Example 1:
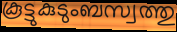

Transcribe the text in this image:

കൂട്ടുകുടുംബസ്വത്തു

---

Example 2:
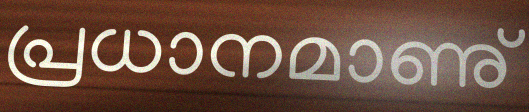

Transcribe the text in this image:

പ്രധാനമാണു്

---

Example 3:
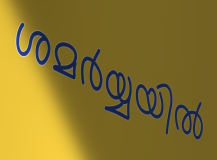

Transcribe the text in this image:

ശമർയ്യയിൽ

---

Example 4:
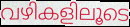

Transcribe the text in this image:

വഴികളിലൂടെ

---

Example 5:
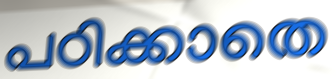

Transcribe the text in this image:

പഠിക്കാതെ